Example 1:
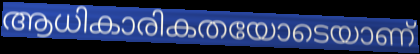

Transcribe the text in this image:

ആധികാരികതയോടെയാണ്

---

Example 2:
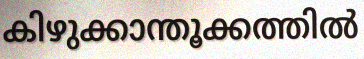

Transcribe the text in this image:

കിഴുക്കാന്തൂക്കത്തിൽ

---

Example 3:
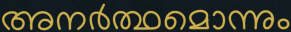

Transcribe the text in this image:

അനർത്ഥമൊന്നും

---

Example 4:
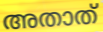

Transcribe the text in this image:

അതാത്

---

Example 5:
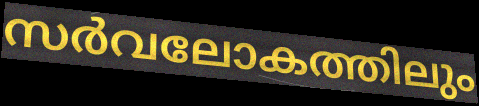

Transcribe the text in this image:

സർവലോകത്തിലും